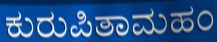
ಕುರುಪಿತಾಮಹಂ